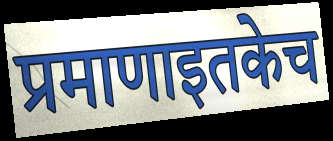
प्रमाणाइतकेच